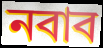
নবাব